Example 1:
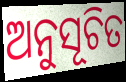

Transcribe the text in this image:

ଅନୁସୂଚିତ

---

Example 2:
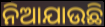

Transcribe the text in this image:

ନିଆଯାଉଛି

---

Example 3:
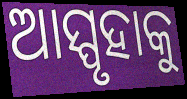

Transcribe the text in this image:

ଆସ୍ପୃହାକୁ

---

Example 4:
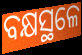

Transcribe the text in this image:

ବକ୍ଷସ୍ଥଳେ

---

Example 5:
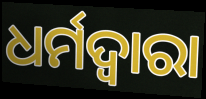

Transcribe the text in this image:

ଧର୍ମଦ୍ଵାରା